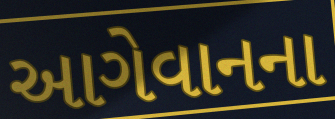
આગેવાનના